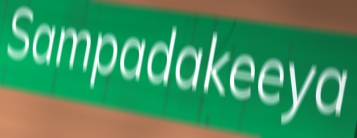
Sampadakeeya